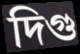
দিগু